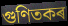
গুণিতকৰ